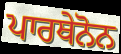
ਪਾਰਥੇਨੋਨ